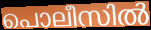
പൊലീസിൽ